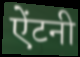
ऐंटनी